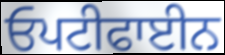
ਓਪਟੀਫਾਈਨ